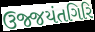
ઉજ્જયંતગિરિ